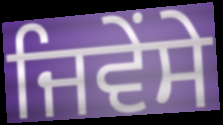
ਜਿਵੇਂਸੇ